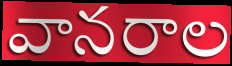
వానరాల